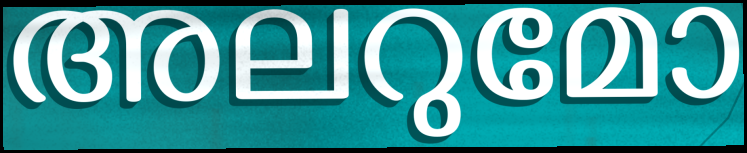
അലറുമോ